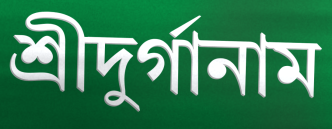
শ্রীদুর্গানাম